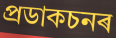
প্ৰডাকচনৰ